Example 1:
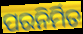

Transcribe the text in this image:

ପରନିର୍ମିତ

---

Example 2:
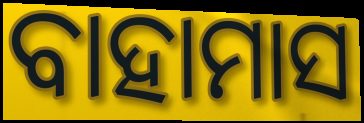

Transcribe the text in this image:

ବାହାମାସ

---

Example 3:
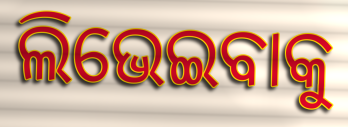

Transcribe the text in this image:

ଲିଭେଇବାକୁ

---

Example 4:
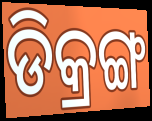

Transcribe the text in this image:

ଡିକ୍ରଙ୍ଗ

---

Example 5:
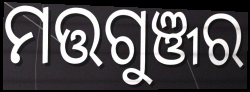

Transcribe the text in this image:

ମତ୍ତଗୁଞ୍ଜର